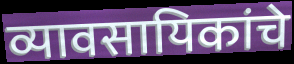
व्यावसायिकांचे